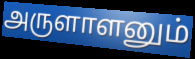
அருளாளனும்